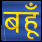
बहूँ